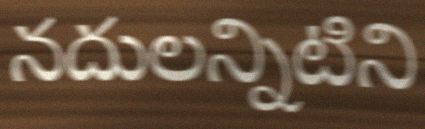
నదులన్నిటిని